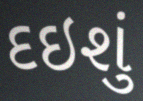
દઇશું